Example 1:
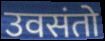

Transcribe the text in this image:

उवसंतो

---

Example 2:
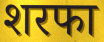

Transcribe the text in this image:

शरफा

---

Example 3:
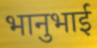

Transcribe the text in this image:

भानुभाई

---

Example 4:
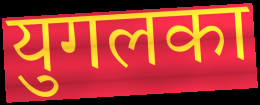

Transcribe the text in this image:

युगलका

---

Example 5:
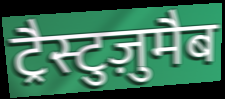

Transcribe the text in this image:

ट्रैस्टुज़ुमैब